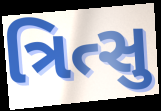
ત્રિત્સુ